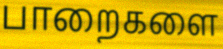
பாறைகளை